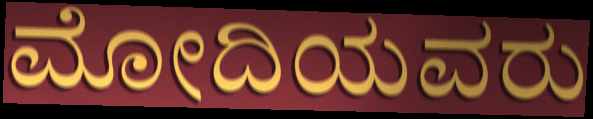
ಮೋದಿಯವರು